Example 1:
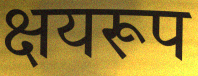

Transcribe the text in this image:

क्षयरूप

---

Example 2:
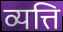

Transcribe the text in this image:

व्यत्ति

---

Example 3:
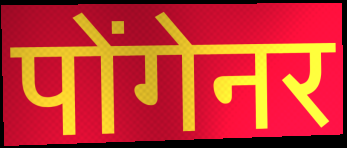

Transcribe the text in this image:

पोंगेनर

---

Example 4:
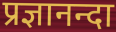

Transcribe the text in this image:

प्रज्ञानन्दा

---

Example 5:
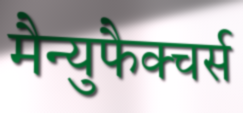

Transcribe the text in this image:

मैन्युफैक्चर्स